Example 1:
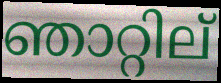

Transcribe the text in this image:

ഞാറ്റില്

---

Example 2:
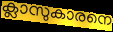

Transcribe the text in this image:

ക്ലാസുകാരനെ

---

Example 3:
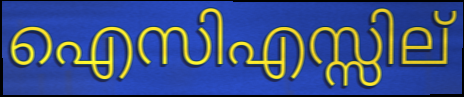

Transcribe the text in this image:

ഐസിഎസ്സില്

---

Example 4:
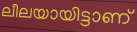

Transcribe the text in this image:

ലീലയായിട്ടാണ്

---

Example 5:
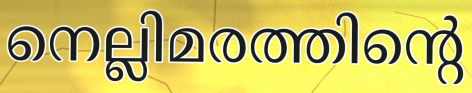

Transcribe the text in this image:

നെല്ലിമരത്തിന്റെ